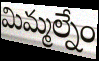
మిమ్మల్నేం